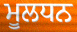
ਮੂਲਧਨ